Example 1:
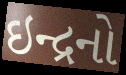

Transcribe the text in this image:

ઇન્દ્રનો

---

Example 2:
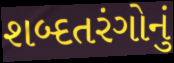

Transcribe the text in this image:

શબ્દતરંગોનું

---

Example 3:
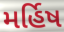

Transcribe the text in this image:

મર્હિષ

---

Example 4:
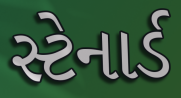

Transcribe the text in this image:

સ્ટેનાર્ડ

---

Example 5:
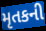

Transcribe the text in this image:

મૃતકની